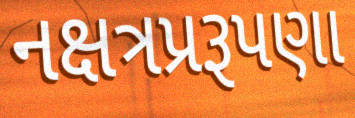
નક્ષત્રપ્રરૂપણા